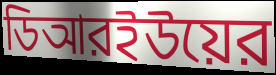
ডিআরইউয়ের